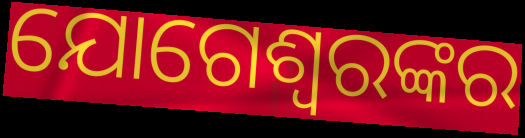
ଯୋଗେଶ୍ଵରଙ୍କର